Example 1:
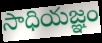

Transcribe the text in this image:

సాధియజ్ఞం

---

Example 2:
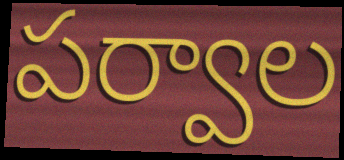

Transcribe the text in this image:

పర్వాల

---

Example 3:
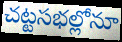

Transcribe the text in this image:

చట్టసభల్లోనూ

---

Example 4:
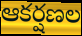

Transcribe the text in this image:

ఆకర్షణల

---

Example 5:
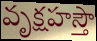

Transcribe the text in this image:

వృక్షహస్తౌ